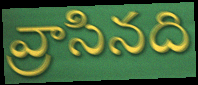
వ్రాసినది